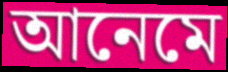
আনেমে